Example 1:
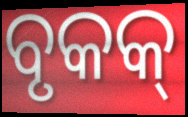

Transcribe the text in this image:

ବୃକକ୍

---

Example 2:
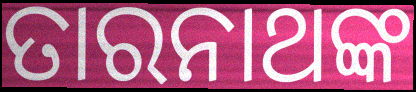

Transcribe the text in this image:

ତାରନାଥଙ୍କ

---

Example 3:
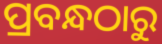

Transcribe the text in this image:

ପ୍ରବନ୍ଧଠାରୁ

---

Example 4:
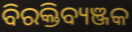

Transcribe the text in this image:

ବିରକ୍ତିବ୍ୟଞ୍ଜକ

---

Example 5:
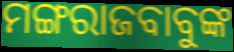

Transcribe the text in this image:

ମଙ୍ଗରାଜବାବୁଙ୍କ